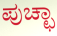
ಪುಚ್ಛಾ